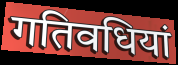
गतिवधियां